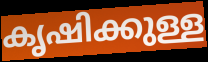
കൃഷിക്കുള്ള